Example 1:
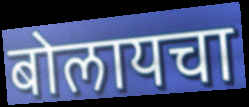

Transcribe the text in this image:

बोलायचा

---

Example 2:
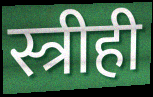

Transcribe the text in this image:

स्त्रीही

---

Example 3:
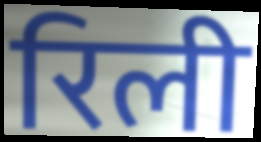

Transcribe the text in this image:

रिली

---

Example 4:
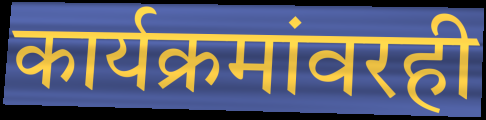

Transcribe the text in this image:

कार्यक्रमांवरही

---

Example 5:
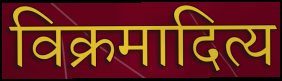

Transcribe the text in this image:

विक्रमादित्य